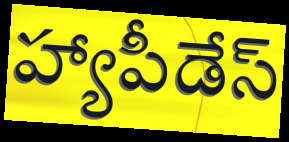
హ్యాపీడేస్